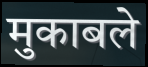
मुकाबले